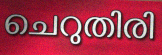
ചെറുതിരി